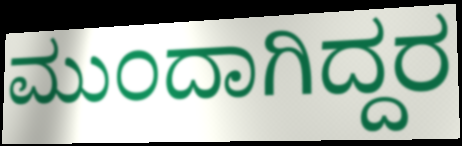
ಮುಂದಾಗಿದ್ದರ